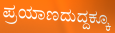
ಪ್ರಯಾಣದುದ್ದಕ್ಕೂ